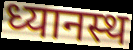
ध्यानस्थ